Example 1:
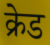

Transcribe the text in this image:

क्रेड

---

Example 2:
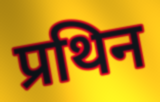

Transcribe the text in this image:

प्रथिन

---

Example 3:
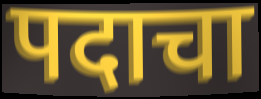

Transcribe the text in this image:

पदाचा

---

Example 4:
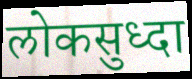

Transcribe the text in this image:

लोकसुध्दा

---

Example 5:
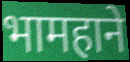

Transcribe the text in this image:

भामहाने